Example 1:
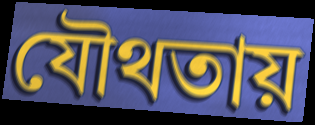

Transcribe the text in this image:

যৌথতায়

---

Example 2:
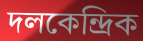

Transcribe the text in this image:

দলকেন্দ্রিক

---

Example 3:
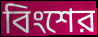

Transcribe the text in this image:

বিংশের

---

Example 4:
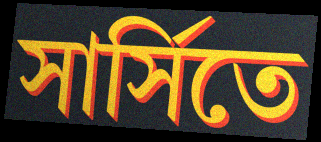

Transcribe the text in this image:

সার্সিতে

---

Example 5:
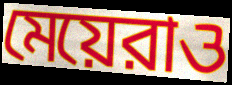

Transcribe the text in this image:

মেয়েরাও